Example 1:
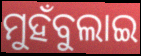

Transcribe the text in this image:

ମୁହଁବୁଲାଇ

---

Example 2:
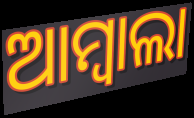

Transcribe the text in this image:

ଆମ୍ବାଲା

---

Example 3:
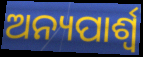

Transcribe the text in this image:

ଅନ୍ୟପାର୍ଶ୍ୱ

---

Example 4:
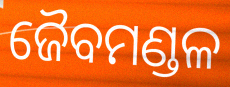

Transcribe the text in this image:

ଜୈବମଣ୍ଡଳ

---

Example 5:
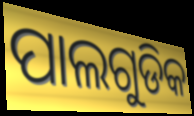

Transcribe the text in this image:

ପାଲଗୁଡିକ